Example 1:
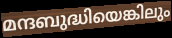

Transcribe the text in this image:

മന്ദബുദ്ധിയെങ്കിലും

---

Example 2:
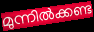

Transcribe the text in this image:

മുന്നിൽക്കണ്ട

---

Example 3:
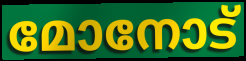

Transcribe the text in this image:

മോനോട്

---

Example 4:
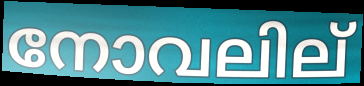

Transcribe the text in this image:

നോവലില്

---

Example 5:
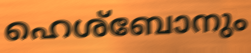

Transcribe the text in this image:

ഹെശ്ബോനും